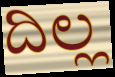
ದಿಲ್ಲ